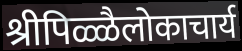
श्रीपिळ्ळैलोकाचार्य